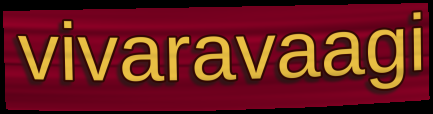
vivaravaagi